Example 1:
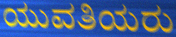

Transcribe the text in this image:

ಯುವತಿಯರು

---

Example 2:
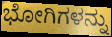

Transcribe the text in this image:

ಭೋಗಿಗಳನ್ನು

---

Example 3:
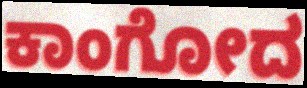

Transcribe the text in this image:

ಕಾಂಗೋದ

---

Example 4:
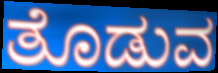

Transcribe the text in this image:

ತೊಡುವ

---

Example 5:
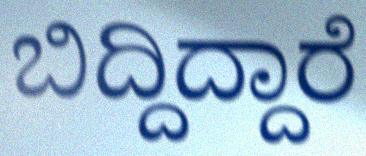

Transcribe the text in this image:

ಬಿದ್ದಿದ್ದಾರೆ